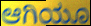
ಆಗಿಯೂ